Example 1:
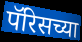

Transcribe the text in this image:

पॅरिसच्या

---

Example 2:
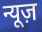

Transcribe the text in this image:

न्यूज़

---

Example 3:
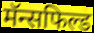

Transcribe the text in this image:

मॅन्सफिल्ड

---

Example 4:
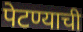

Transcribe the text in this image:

पेटण्याची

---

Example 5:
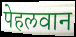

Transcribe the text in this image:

पेहलवान